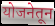
योजनेतून